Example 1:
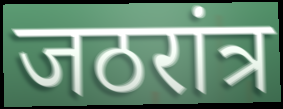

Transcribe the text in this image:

जठरांत्र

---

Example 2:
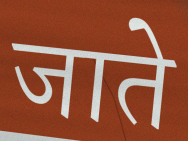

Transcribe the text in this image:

जाते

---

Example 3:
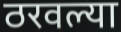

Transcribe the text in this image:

ठरवल्या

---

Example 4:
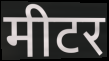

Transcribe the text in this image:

मीटर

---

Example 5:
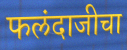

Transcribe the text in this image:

फलंदाजीचा